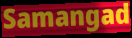
Samangad